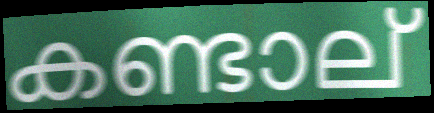
കണ്ടാല്